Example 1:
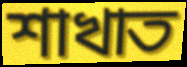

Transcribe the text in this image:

শাখাত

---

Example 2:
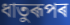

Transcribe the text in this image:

ধাতুৰূপৰ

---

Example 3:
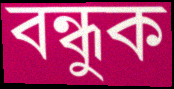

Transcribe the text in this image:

বন্ধুক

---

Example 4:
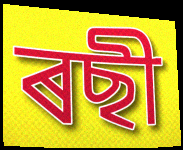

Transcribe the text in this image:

ৰছী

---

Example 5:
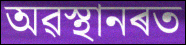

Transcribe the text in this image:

অৱস্থানৰত